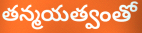
తన్మయత్వంతో